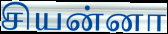
சியன்னா